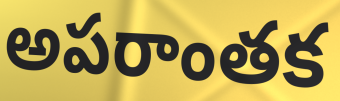
అపరాంతక